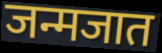
जन्मजात